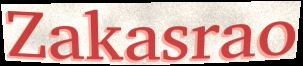
Zakasrao